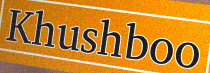
Khushboo